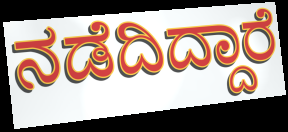
ನಡೆದಿದ್ದಾರೆ